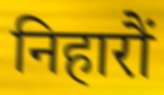
निहारौं